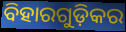
ବିହାରଗୁଡ଼ିକର